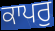
ਕਾਪਰੁ